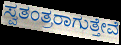
ಸ್ವತಂತ್ರರಾಗುತ್ತೇವೆ